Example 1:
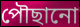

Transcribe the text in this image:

পৌছানো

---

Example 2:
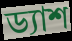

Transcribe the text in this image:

ড্যাশ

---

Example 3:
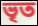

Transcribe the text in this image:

ভৃত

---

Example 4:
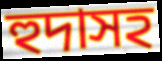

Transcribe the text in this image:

হুদাসহ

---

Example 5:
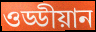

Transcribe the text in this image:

ওড্ডীয়ান